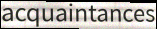
acquaintances